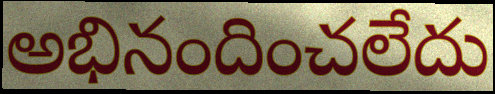
అభినందించలేదు